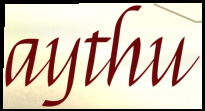
aythu